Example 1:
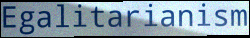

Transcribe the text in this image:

Egalitarianism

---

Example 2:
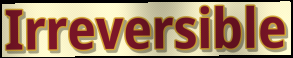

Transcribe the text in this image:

Irreversible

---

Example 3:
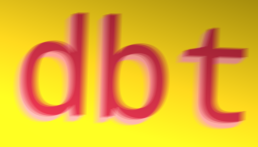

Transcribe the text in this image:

dbt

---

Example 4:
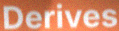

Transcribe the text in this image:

Derives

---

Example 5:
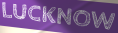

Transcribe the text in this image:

LUCKNOW